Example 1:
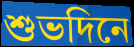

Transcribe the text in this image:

শুভদিনে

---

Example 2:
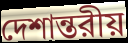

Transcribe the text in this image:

দেশান্তরীয়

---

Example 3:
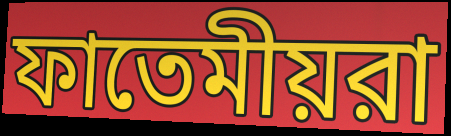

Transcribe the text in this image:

ফাতেমীয়রা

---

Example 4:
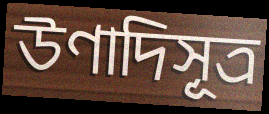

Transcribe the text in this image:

উণাদিসূত্র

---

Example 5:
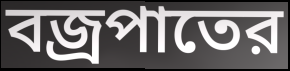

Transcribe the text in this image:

বজ্রপাতের